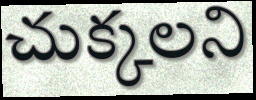
చుక్కలని